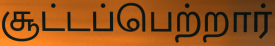
சூட்டப்பெற்றார்